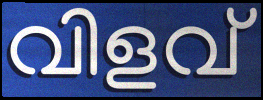
വിളവ്